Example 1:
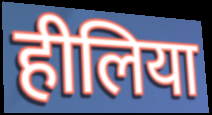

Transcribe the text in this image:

हीलिया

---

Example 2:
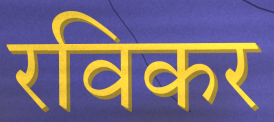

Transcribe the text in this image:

रविकर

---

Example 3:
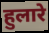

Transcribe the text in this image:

हुलारे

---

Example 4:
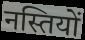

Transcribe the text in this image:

नस्तियों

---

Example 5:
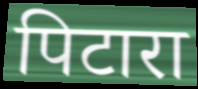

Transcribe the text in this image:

पिटारा